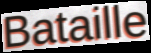
Bataille